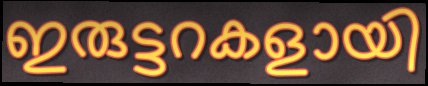
ഇരുട്ടറകളായി